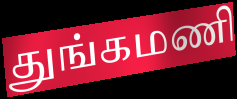
துங்கமணி